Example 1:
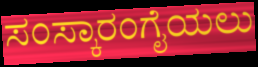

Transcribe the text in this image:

ಸಂಸ್ಕಾರಂಗೈಯಲು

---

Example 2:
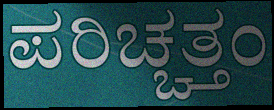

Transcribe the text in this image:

ಪರಿಚ್ಚತ್ತಂ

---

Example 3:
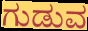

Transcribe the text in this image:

ಗುಡುವ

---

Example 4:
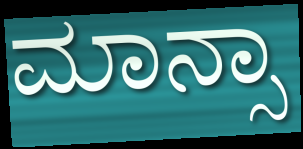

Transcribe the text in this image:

ಮಾನ್ಸಾ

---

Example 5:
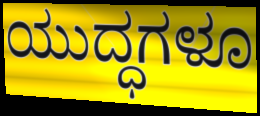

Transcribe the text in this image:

ಯುದ್ಧಗಳೂ